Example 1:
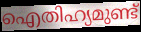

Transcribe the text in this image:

ഐതിഹ്യമുണ്ട്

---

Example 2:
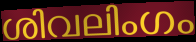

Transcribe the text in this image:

ശിവലിംഗം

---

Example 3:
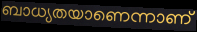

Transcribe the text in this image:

ബാധ്യതയാണെന്നാണ്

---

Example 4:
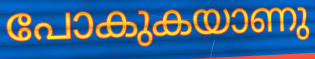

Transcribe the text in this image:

പോകുകയാണു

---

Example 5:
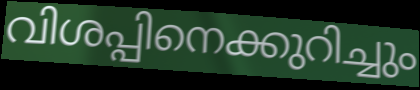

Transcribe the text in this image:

വിശപ്പിനെക്കുറിച്ചും